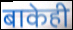
बाकेही